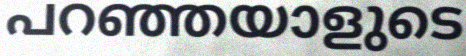
പറഞ്ഞയാളുടെ